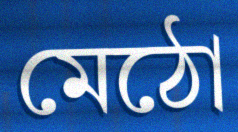
মেঠো